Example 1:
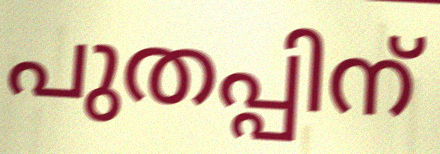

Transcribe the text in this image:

പുതപ്പിന്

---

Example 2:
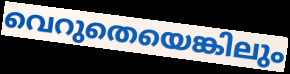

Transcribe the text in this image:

വെറുതെയെങ്കിലും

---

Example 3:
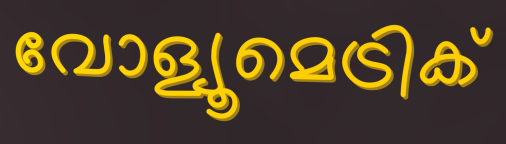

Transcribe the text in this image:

വോള്യൂമെട്രിക്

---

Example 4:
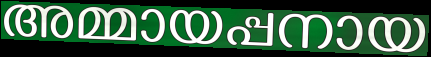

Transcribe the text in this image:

അമ്മായപ്പനായ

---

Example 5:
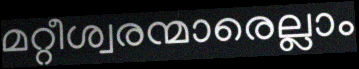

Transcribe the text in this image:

മറ്റീശ്വരന്മാരെല്ലാം